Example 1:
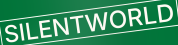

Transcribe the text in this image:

SILENTWORLD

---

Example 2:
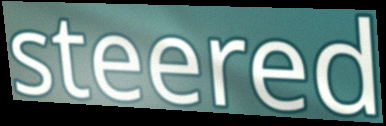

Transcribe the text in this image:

steered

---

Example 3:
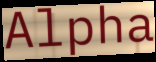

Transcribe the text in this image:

Alpha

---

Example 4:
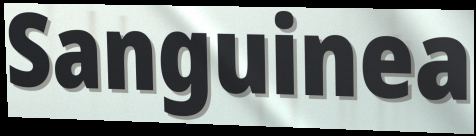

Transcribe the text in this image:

Sanguinea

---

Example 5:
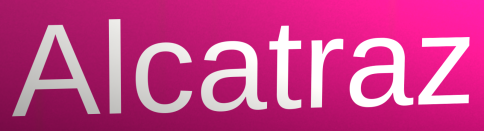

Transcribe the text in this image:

Alcatraz